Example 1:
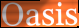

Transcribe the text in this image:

Oasis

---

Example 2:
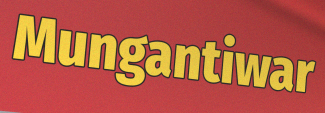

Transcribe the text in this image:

Mungantiwar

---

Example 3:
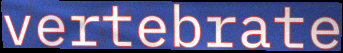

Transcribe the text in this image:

vertebrate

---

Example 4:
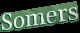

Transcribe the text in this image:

Somers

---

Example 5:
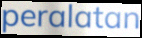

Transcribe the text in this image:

peralatan